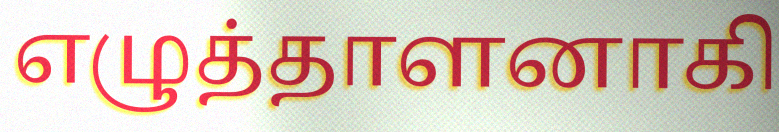
எழுத்தாளனாகி